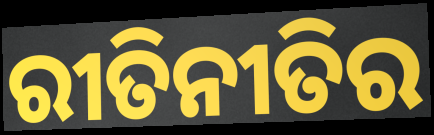
ରୀତିନୀତିର